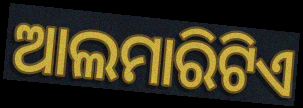
ଆଲମାରିଟିଏ